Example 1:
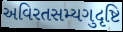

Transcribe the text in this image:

અવિરતસમ્યગુદૃષ્ટિ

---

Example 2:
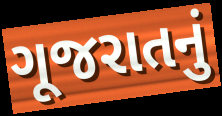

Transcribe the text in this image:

ગૂજરાતનું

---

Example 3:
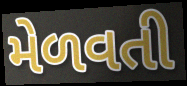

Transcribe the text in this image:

મેળવતી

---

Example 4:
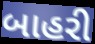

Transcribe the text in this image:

બાહરી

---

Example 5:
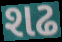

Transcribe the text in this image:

શઢ